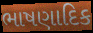
ભાષણાદિક